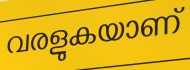
വരളുകയാണ്